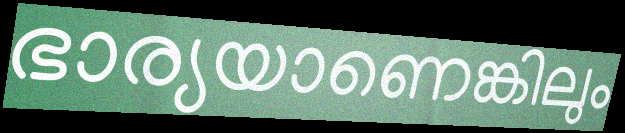
ഭാര്യയാണെങ്കിലും